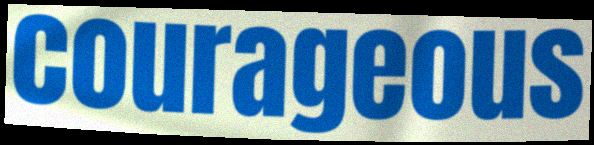
courageous